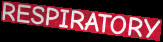
RESPIRATORY